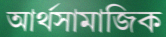
আর্থসামাজিক